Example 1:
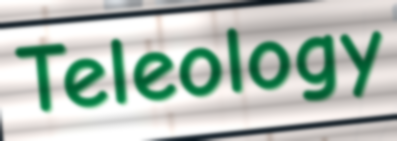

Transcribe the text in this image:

Teleology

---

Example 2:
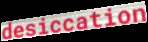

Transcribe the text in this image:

desiccation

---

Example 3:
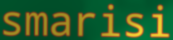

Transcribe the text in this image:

smarisi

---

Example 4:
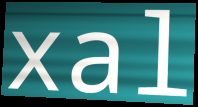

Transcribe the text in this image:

xal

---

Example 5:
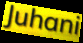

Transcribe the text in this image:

Juhani